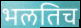
भलतिच